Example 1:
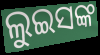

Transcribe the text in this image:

ଲୁଇସଙ୍କ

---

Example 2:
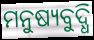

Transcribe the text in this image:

ମନୁଷ୍ୟବୁଦ୍ଧି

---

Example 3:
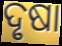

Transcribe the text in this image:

ଦୃଷା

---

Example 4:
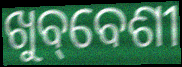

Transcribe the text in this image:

ଖୁବ୍‌ବେଶୀ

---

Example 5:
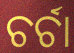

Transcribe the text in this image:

ଚର୍ଚା